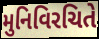
મુનિવિરચિતે